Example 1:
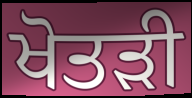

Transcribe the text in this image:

ਖੋਤੜੀ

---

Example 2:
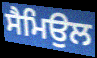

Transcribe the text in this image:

ਸੈਮਿਉਲ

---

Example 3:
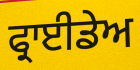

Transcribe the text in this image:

ਫ੍ਰਾਈਡੇਅ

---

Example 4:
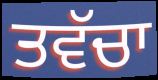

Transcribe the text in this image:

ਤਵੱਚਾ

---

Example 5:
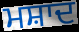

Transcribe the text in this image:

ਮਸ਼ਾਦ